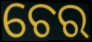
ଚେର